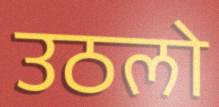
उठलो